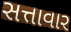
સત્તાવાર